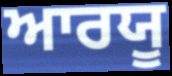
ਆਰਯੂ